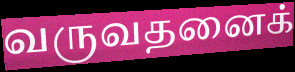
வருவதனைக்